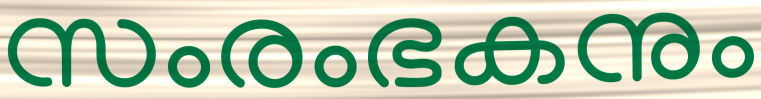
സംരംഭകനും